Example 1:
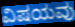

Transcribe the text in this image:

ವಿಷಯವು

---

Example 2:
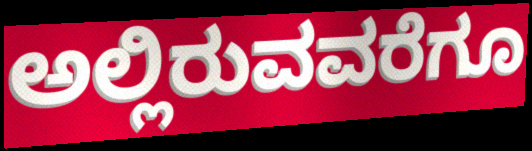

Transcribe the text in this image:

ಅಲ್ಲಿರುವವರೆಗೂ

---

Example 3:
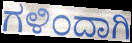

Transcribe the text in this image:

ಗಳಿಂದಾಗಿ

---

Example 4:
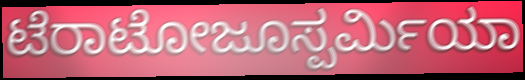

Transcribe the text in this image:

ಟೆರಾಟೋಜೂಸ್ಪರ್ಮಿಯಾ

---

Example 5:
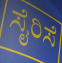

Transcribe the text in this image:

ಸೈರಿಸೆ